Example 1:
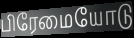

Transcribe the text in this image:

பிரேமையோடு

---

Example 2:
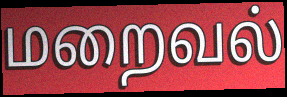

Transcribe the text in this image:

மறைவல்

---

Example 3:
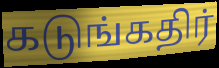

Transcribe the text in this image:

கடுங்கதிர்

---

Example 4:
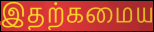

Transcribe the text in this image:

இதற்கமைய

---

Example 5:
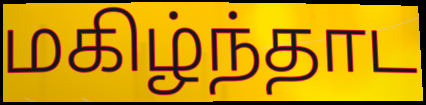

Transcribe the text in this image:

மகிழ்ந்தாட